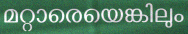
മറ്റാരെയെങ്കിലും